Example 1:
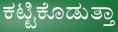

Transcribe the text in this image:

ಕಟ್ಟಿಕೊಡುತ್ತಾ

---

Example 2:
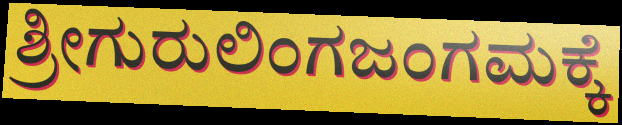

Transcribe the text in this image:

ಶ್ರೀಗುರುಲಿಂಗಜಂಗಮಕ್ಕೆ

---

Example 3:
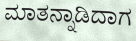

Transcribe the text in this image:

ಮಾತನ್ನಾಡಿದಾಗ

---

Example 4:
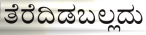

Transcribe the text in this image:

ತೆರೆದಿಡಬಲ್ಲದು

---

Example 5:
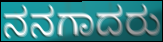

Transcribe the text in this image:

ನನಗಾದರು